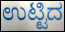
ಉಟ್ಟಿದ